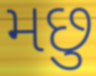
મછુ